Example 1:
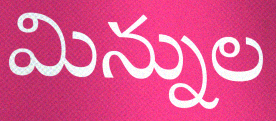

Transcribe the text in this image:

మిన్నుల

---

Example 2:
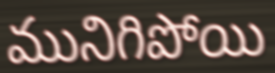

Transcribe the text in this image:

మునిగిపోయి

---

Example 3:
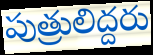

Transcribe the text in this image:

పుత్రులిద్దరు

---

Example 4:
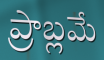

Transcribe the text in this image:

ప్రాబ్లమే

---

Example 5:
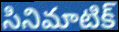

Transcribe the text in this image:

సినిమాటిక్